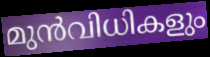
മുൻവിധികളും